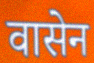
वासेन